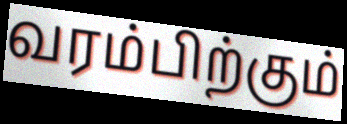
வரம்பிற்கும்